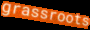
grassroots